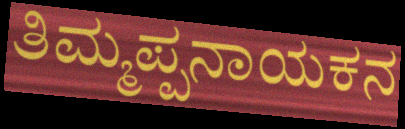
ತಿಮ್ಮಪ್ಪನಾಯಕನ